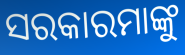
ସରକାରମାଙ୍କୁ